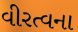
વીરત્વના